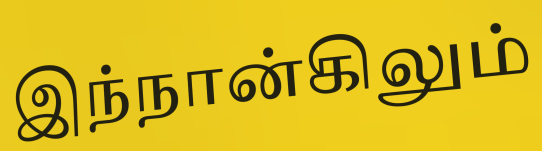
இந்நான்கிலும்